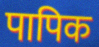
पापिक